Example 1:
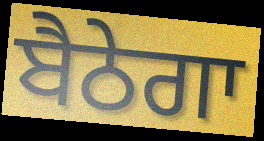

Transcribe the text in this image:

ਬੈਠੇਗਾ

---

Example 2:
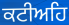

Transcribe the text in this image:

ਕਟੀਅਹਿ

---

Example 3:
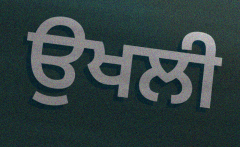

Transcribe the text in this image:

ਉਖਲੀ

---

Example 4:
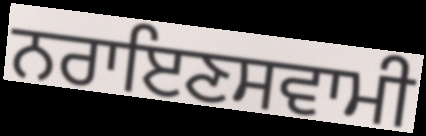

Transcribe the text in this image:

ਨਰਾਇਣਸਵਾਮੀ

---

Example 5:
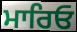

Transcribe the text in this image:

ਮਾਰਿਓ